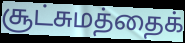
சூட்சுமத்தைக்